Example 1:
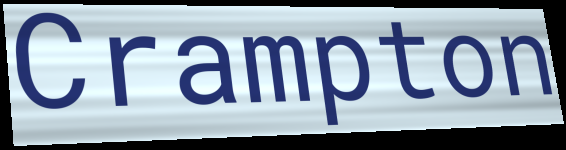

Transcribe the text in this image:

Crampton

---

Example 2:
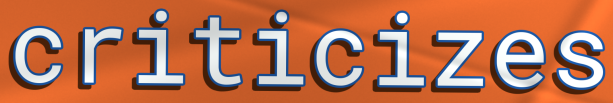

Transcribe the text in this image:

criticizes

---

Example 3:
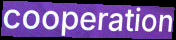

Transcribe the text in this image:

cooperation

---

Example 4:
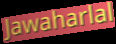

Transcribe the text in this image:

Jawaharlal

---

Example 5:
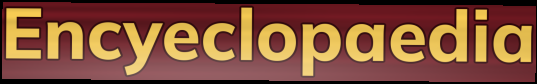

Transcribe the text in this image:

Encyeclopaedia